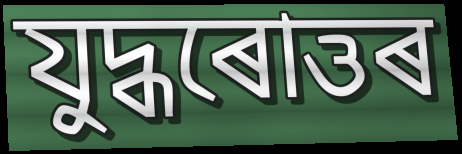
যুদ্ধৰোত্তৰ